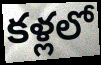
కళ్లలో